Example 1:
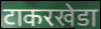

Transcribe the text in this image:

टाकरखेडा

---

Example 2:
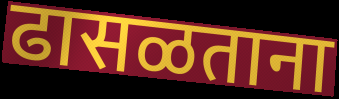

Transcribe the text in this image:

ढासळताना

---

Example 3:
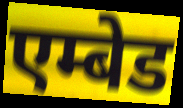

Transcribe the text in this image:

एम्बेड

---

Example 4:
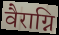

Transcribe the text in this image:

वैराग्नि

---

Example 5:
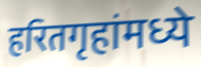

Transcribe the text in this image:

हरितगृहांमध्ये